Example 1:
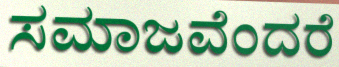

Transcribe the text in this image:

ಸಮಾಜವೆಂದರೆ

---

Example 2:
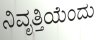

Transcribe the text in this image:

ನಿವೃತ್ತಿಯೆಂದು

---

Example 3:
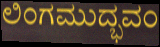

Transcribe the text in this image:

ಲಿಂಗಮುದ್ಭವಂ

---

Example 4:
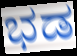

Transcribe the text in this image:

ಭಡ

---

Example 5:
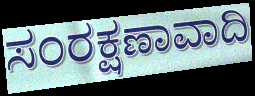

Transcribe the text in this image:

ಸಂರಕ್ಷಣಾವಾದಿ